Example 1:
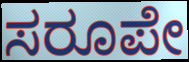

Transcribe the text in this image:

ಸರೂಪೇ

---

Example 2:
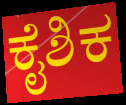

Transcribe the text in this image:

ಕೈಶಿಕ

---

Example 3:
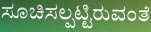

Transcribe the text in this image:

ಸೂಚಿಸಲ್ಪಟ್ಟಿರುವಂತೆ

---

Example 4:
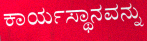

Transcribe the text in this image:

ಕಾರ್ಯಸ್ಥಾನವನ್ನು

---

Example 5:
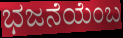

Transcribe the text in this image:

ಭಜನೆಯೆಂಬ